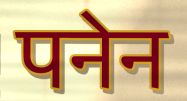
पनेन